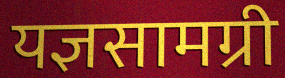
यज्ञसामग्री